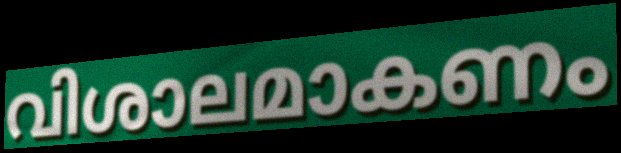
വിശാലമാകണം